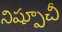
నిష్పూచీ